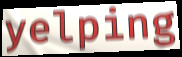
yelping